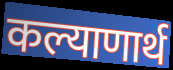
कल्याणार्थ